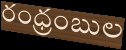
రంధ్రంబుల